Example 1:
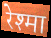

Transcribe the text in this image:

रेश्मा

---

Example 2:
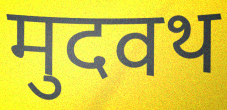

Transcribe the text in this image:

मुदवथ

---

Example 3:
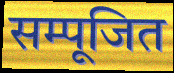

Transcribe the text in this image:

सम्पूजित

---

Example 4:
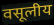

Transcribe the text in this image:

वसूलीय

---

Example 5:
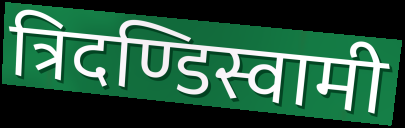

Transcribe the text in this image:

त्रिदण्डिस्वामी